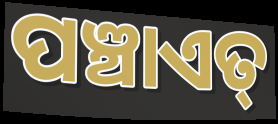
ପଞ୍ଚାଏତ୍